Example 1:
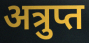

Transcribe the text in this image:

अत्रुप्त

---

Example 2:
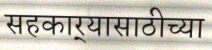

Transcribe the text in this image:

सहकार्यासाठीच्या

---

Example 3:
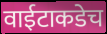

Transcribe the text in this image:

वाईटाकडेच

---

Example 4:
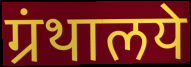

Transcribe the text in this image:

ग्रंथालये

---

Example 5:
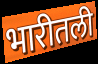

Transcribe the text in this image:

भारीतली